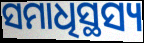
ସମାଧିସ୍ଥସ୍ୟ